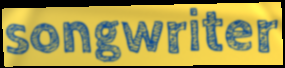
songwriter